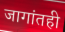
जागांतही